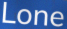
Lone